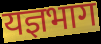
यज्ञभाग